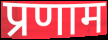
प्रणाम